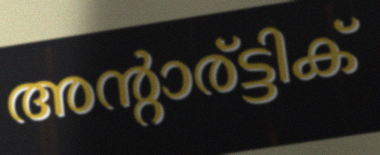
അന്റാര്ട്ടിക്